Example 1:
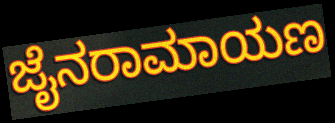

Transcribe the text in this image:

ಜೈನರಾಮಾಯಣ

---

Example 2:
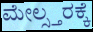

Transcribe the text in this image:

ಮೇಲ್ಸ್ತರಕ್ಕೆ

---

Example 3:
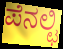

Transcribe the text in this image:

ಪೆನಲ್ಟಿ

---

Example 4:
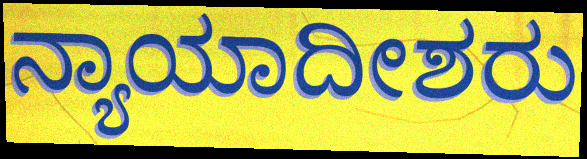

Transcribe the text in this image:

ನ್ಯಾಯಾದೀಶರು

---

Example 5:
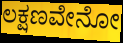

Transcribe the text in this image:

ಲಕ್ಷಣವೇನೋ